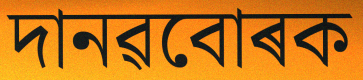
দানৱবোৰক